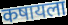
कषायला